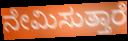
ನೇಮಿಸುತ್ತಾರೆ